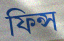
ফিন্স